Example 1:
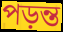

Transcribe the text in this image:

পড়ন্ত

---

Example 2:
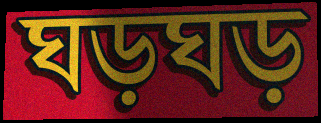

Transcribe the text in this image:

ঘড়ঘড়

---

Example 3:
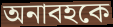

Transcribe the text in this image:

অনাবহকে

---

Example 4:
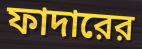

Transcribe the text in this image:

ফাদারের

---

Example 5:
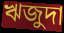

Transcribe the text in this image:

ঋজুদা